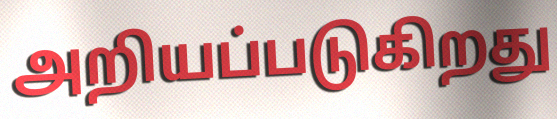
அறியப்படுகிறது